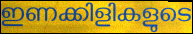
ഇണക്കിളികളുടെ